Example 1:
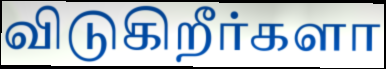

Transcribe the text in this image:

விடுகிறீர்களா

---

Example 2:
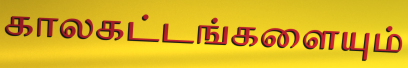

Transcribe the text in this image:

காலகட்டங்களையும்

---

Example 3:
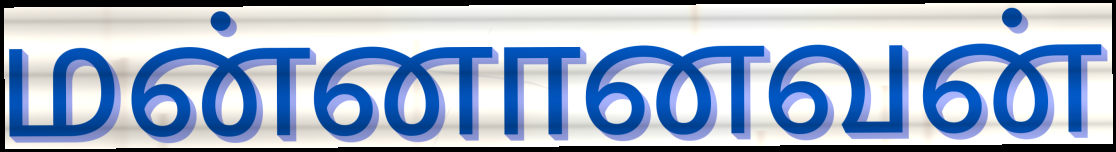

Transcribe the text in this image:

மன்னானவன்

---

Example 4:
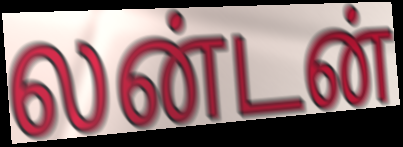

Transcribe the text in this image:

லன்டன்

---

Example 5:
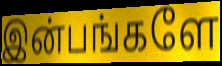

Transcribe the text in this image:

இன்பங்களே